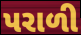
પરાળી